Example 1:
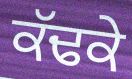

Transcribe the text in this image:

ਕੱਢਕੇ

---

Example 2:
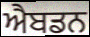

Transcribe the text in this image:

ਐਬਡਨ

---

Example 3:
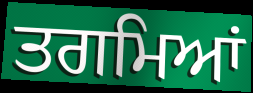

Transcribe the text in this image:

ਤਗਮਿਆਂ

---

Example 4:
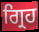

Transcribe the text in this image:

ਗ੍ਰਿਹ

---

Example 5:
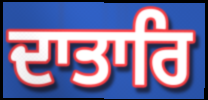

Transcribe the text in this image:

ਦਾਤਾਰਿ